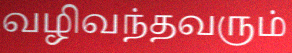
வழிவந்தவரும்